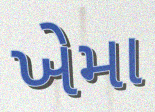
ખેમા